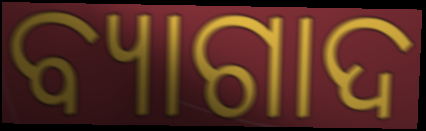
ବ୍ୟାଗାଦ